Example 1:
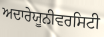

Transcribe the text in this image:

ਅਦਾਰੇਯੂਨੀਵਰਸਿਟੀ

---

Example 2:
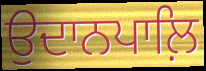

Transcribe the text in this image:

ਉਦਾਨਪਾਲ਼ਿ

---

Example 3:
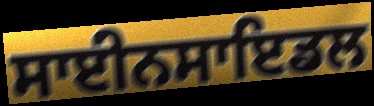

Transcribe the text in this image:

ਸਾਈਨਸਾਇਡਲ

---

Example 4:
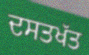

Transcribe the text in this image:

ਦਸਤਖੱਤ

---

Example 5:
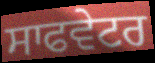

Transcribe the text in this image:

ਸਾਫਵੇਟਰ